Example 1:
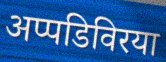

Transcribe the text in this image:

अप्पडिविरया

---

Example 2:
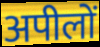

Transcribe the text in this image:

अपीलों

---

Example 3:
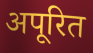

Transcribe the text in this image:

अपूरित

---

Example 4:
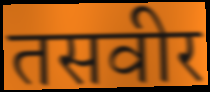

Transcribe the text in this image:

तसवीर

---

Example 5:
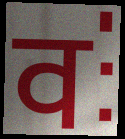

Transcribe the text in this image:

वः॑